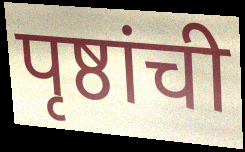
पृष्ठांची